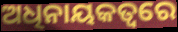
ଅଧିନାୟକତ୍ବରେ